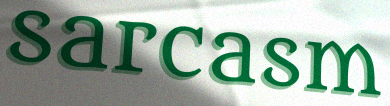
sarcasm